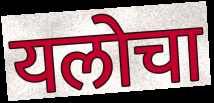
यलोचा